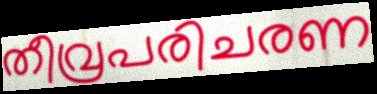
തീവ്രപരിചരണ